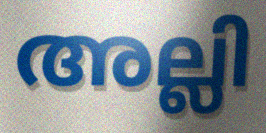
അല്ലി